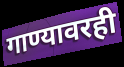
गाण्यावरही